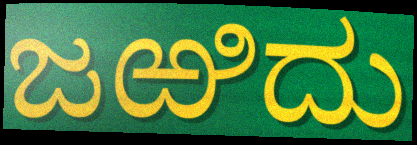
ಜಱಿದು